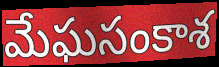
మేఘసంకాశ